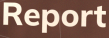
Report